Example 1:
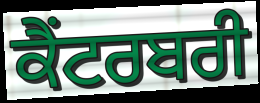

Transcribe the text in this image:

ਕੈਂਟਰਬਰੀ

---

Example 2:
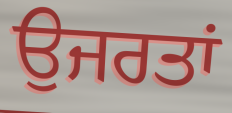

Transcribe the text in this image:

ਉਜਰਤਾਂ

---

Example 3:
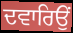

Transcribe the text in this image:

ਦਵਾਰਿਉਂ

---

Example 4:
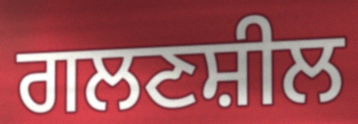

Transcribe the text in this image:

ਗਲਣਸ਼ੀਲ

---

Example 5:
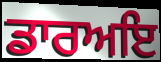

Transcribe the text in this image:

ਡਾਰਅਇ